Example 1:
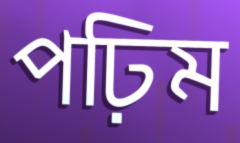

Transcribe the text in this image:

পঢ়িম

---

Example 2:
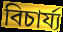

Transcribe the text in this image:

বিচাৰ্য্য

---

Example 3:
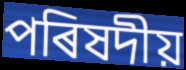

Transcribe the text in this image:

পৰিষদীয়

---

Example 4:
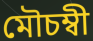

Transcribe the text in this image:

মৌচম্বী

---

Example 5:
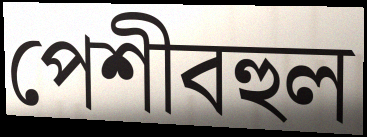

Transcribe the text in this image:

পেশীবহুল